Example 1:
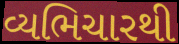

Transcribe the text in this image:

વ્યભિચારથી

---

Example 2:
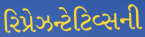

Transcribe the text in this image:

રિપ્રેઝન્ટેટિવ્સની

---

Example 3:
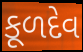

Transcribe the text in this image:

કૂળદેવ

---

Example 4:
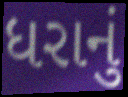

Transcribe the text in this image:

ધરાનું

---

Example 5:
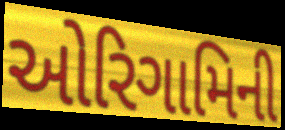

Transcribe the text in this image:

ઓરિગામિની